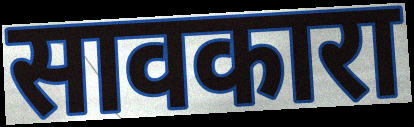
सावकारा